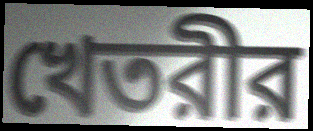
খেতরীর